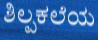
ಶಿಲ್ಪಕಲೆಯ